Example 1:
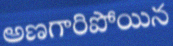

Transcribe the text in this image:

అణగారిపోయిన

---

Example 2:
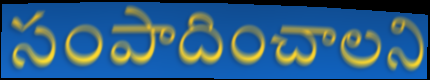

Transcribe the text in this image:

సంపాదించాలని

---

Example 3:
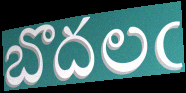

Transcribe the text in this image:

బొదలఁ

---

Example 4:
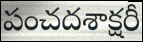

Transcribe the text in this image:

పంచదశాక్షరీ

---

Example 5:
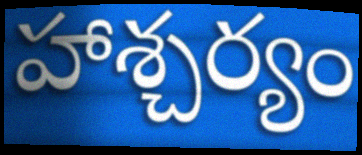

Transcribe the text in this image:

హాశ్చర్యం